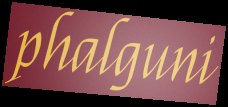
phalguni